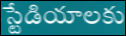
స్టేడియాలకు